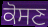
ਕੋਸਣ